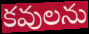
కవులను